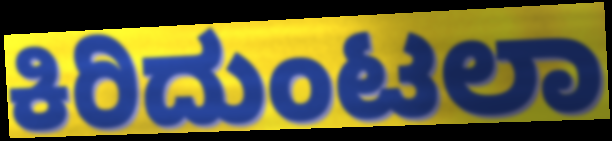
ಕಿರಿದುಂಟಲಾ